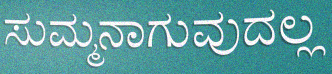
ಸುಮ್ಮನಾಗುವುದಲ್ಲ